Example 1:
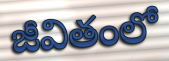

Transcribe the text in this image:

జీవితంలో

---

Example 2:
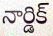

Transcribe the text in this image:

నార్డిక్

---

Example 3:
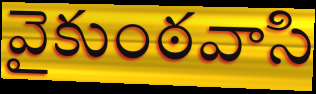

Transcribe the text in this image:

వైకుంఠవాసి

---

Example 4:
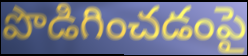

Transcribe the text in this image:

పొడిగించడంపై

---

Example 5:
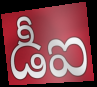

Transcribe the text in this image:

డీఐ